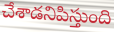
చేశాడనిపిస్తుంది